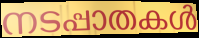
നടപ്പാതകൾ